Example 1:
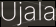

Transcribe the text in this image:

Ujala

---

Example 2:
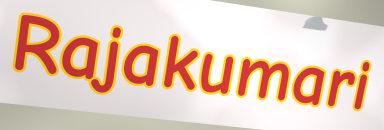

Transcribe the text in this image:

Rajakumari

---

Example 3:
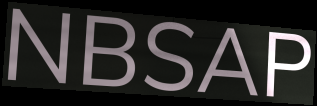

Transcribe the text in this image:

NBSAP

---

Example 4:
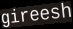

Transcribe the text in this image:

gireesh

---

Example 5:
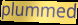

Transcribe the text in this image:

plummed